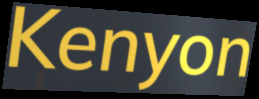
Kenyon